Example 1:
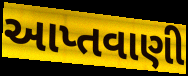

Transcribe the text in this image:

આપ્તવાણી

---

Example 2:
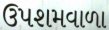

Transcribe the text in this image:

ઉપશમવાળા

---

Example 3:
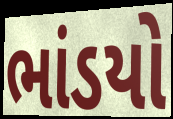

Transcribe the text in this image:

ભાંડયો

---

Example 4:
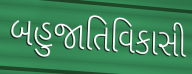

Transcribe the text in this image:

બહુજાતિવિકાસી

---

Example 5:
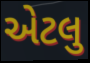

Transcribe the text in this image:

એટલુ